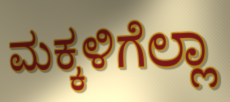
ಮಕ್ಕಳಿಗೆಲ್ಲಾ